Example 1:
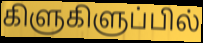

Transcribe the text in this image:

கிளுகிளுப்பில்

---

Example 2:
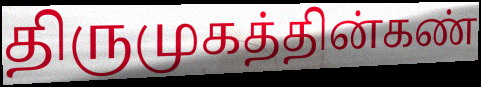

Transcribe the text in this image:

திருமுகத்தின்கண்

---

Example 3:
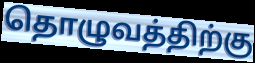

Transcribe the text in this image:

தொழுவத்திற்கு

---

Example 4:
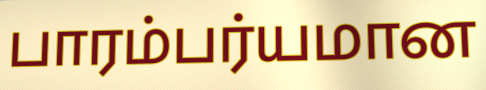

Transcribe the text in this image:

பாரம்பர்யமான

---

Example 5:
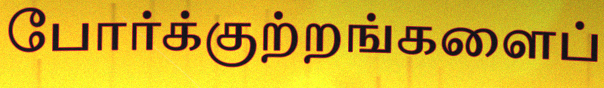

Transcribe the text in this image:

போர்க்குற்றங்களைப்